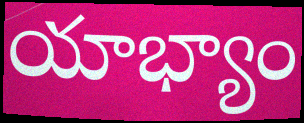
యాభ్యాం